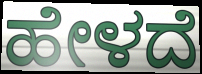
ಹೇಳದೆ